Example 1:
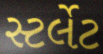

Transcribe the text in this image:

સ્ટર્લેટ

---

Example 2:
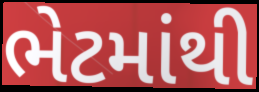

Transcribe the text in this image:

ભેટમાંથી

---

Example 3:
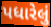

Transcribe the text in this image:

પધારેલું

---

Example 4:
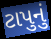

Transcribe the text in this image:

ટાપુનું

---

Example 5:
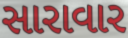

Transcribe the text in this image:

સારાવાર